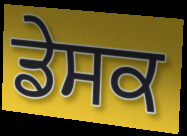
ਡੇਸਕ